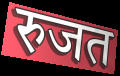
रुजत